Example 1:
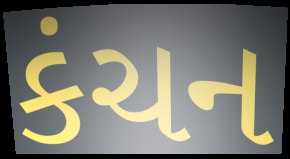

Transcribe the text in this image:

કંચન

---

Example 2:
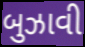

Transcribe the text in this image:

બુઝાવી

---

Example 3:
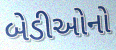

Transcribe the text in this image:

બેડીઓનો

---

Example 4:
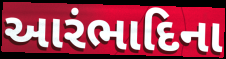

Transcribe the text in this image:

આરંભાદિના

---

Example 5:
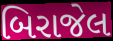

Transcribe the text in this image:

બિરાજેલ